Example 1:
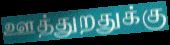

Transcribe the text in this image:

ஊத்துறதுக்கு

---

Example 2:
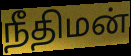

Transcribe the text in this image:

நீதிமன்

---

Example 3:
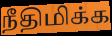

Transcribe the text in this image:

நீதிமிக்க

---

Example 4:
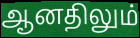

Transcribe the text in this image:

ஆனதிலும்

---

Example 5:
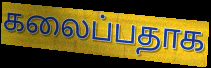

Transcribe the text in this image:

கலைப்பதாக